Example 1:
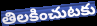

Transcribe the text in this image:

తిలకించుటకు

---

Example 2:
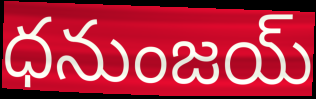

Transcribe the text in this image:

ధనుంజయ్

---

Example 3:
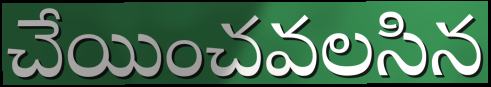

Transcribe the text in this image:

చేయించవలసిన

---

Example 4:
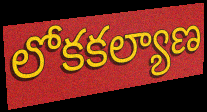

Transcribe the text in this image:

లోకకల్యాణ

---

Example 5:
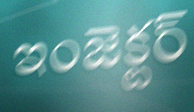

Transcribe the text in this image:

ఇంజెక్టర్